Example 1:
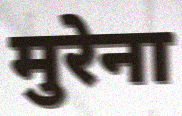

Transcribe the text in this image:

मुरेना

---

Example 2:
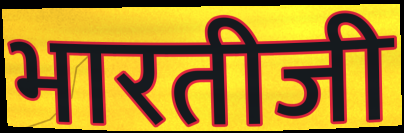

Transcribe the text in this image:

भारतीजी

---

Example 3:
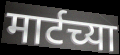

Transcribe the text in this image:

मार्टच्या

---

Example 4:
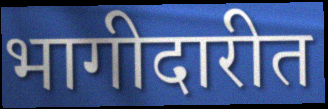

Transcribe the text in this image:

भागीदारीत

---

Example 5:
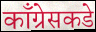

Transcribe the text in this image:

काँग्रेसकडे